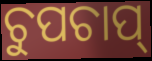
ଚୁପଚାପ୍